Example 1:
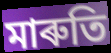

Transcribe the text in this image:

মাৰুতি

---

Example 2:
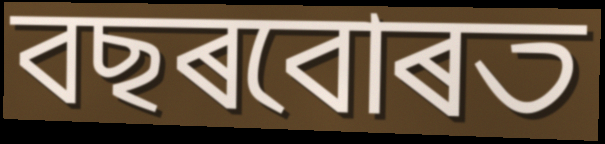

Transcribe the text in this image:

বছৰবোৰত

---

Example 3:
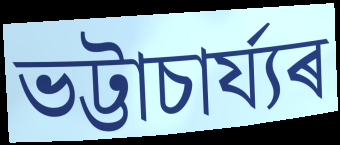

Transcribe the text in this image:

ভট্টাচাৰ্য্যৰ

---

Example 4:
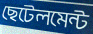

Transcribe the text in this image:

ছেটেলমেন্ট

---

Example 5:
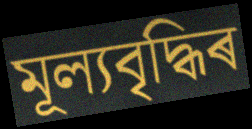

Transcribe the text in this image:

মূল্যবৃদ্ধিৰ